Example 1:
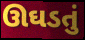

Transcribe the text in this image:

ઊઘડતું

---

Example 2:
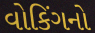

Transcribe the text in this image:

વોકિંગનો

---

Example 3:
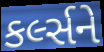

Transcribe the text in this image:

કર્લ્સને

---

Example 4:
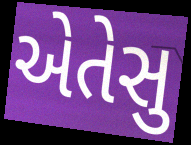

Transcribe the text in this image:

એતેસુ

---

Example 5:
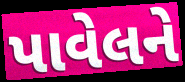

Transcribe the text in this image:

પાવેલને